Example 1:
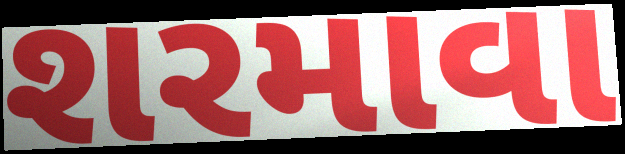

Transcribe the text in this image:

શરમાવા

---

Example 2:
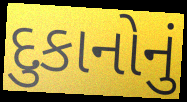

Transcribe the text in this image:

દુકાનોનું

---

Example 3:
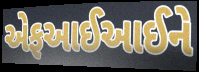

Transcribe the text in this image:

એફઆઈઆઈને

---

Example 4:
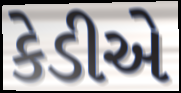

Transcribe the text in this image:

કેડીએ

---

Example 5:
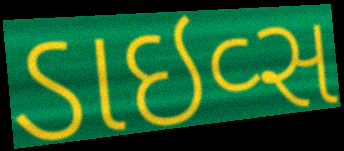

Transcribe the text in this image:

ડાઇવ્સ